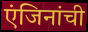
एंजिनांची